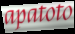
apatoto